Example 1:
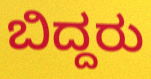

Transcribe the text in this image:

ಬಿದ್ದರು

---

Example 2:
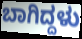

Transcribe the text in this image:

ಬಾಗಿದ್ದಳು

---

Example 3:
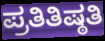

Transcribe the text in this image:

ಪ್ರತಿತಿಷ್ಠತಿ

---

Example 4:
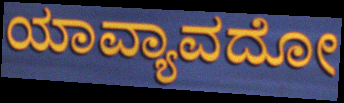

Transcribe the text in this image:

ಯಾವ್ಯಾವದೋ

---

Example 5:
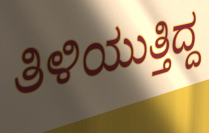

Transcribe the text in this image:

ತಿಳಿಯುತ್ತಿದ್ದ